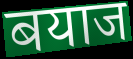
बयाज